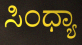
ಸಿಂಧ್ಯಾ